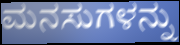
ಮನಸುಗಳನ್ನು